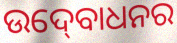
ଉଦ୍‍ବୋଧନର